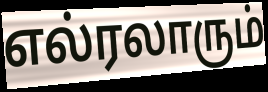
எல்ரலாரும்